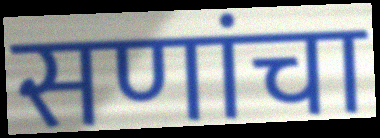
सणांचा